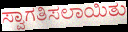
ಸ್ವಾಗತಿಸಲಾಯಿತು